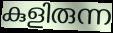
കുളിരുന്ന